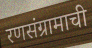
रणसंग्रामाची